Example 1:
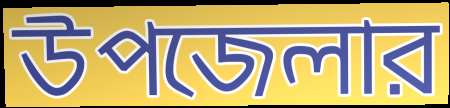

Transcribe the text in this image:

উপজেলার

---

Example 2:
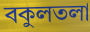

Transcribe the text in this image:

বকুলতলা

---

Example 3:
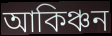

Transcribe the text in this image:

আকিঞ্চন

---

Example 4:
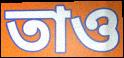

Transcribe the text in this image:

তাও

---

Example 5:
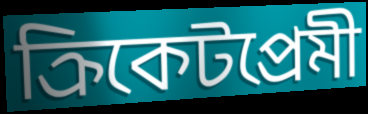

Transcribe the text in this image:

ক্রিকেটপ্রেমী